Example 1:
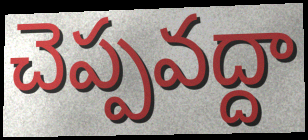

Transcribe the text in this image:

చెప్పవద్దా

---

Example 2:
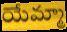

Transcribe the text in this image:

యేమ్మా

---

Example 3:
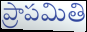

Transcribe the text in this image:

ప్రాపమితి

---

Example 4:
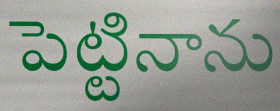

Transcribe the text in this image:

పెట్టినాను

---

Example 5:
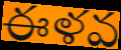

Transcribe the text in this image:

ఈళవ